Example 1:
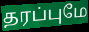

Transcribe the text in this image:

தரப்புமே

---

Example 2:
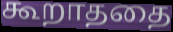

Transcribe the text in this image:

கூறாததை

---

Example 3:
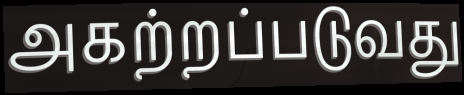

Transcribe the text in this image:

அகற்றப்படுவது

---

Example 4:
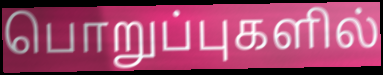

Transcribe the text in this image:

பொறுப்புகளில்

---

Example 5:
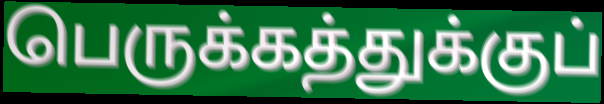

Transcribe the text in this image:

பெருக்கத்துக்குப்